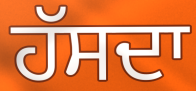
ਹੱਸਦਾ